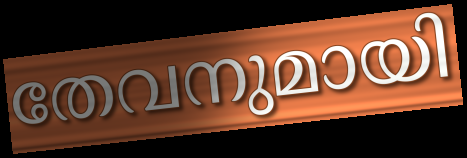
തേവനുമായി